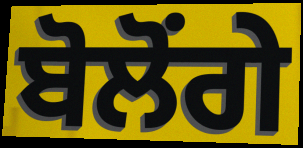
ਬੋਲੋਂਗੇ